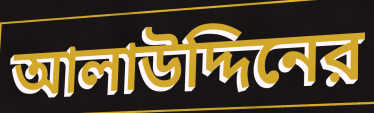
আলাউদ্দিনের